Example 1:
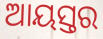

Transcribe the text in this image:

ଆୟସ୍ତର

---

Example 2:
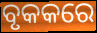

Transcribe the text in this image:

ବୃକକରେ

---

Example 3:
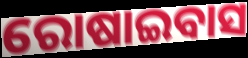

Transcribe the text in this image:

ରୋଷାଇବାସ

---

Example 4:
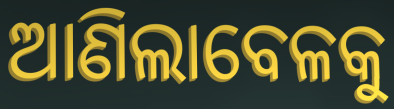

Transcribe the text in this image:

ଆଣିଲାବେଳକୁ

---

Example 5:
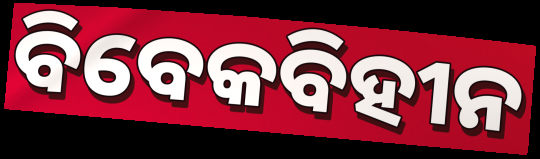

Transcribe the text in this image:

ବିବେକବିହୀନ